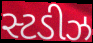
સ્ટડીઝ